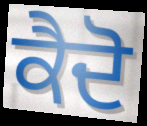
ਕੈਦੋ